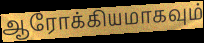
ஆரோக்கியமாகவும்